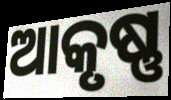
ଆକୃଷ୍ଣ